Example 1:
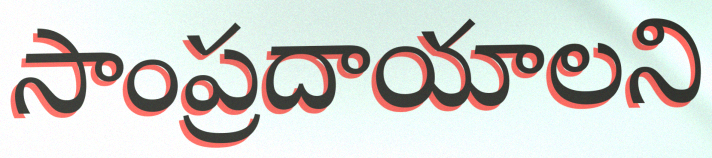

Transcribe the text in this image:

సాంప్రదాయాలని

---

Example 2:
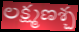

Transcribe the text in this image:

లక్ష్మణశ్చ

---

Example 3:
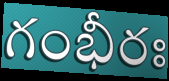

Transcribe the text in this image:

గంభీరః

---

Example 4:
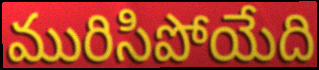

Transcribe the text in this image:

మురిసిపోయేది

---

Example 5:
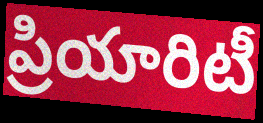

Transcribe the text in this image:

ప్రియారిటీ